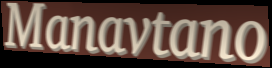
Manavtano